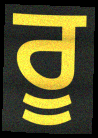
ਰੂ